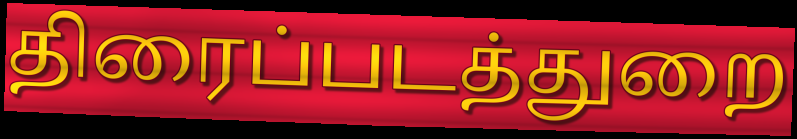
திரைப்படத்துறை